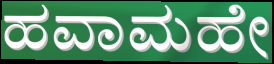
ಹವಾಮಹೇ